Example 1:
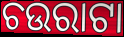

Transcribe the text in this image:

ଚଉରାଟା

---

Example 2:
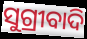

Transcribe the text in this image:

ସୁଗ୍ରୀବାଦି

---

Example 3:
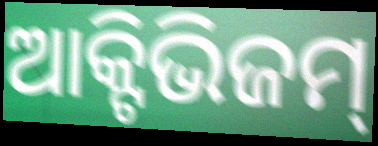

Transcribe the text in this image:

ଆକ୍ଟିଭିଜମ୍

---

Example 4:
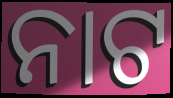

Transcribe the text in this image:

ନାଟ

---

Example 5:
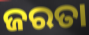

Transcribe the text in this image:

ଜରତା